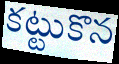
కట్టుకొన